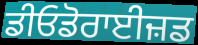
ਡੀਓਡੋਰਾਈਜ਼ਡ